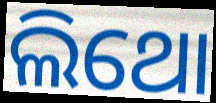
ଲିଥୋ